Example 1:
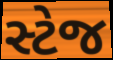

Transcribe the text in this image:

સ્ટેજ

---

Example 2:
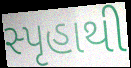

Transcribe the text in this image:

સ્પૃહાથી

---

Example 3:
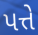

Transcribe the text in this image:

પત્તે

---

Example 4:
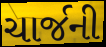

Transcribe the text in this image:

ચાર્જની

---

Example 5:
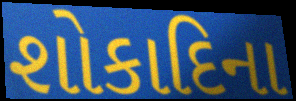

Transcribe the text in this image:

શોકાદિના